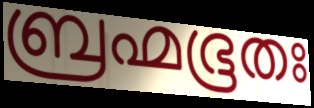
ബ്രഹ്മഭൂതഃ